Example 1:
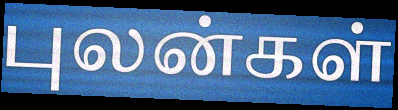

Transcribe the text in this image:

புலன்கள்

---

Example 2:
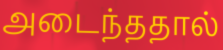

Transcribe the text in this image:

அடைந்ததால்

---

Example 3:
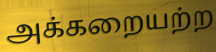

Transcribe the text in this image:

அக்கறையற்ற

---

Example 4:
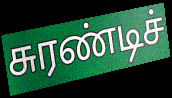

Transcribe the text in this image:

சுரண்டிச்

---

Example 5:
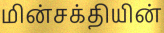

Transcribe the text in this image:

மின்சக்தியின்